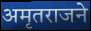
अमृतराजने